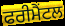
ਫਰੀਮੈਂਟਲ